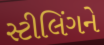
સ્ટીલિંગને